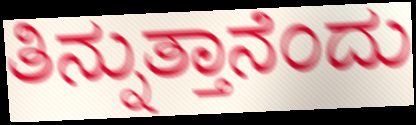
ತಿನ್ನುತ್ತಾನೆಂದು